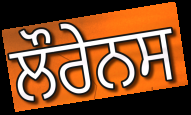
ਲੌਰੇਨਸ